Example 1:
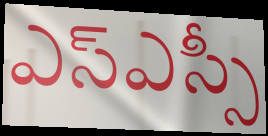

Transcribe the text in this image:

ఎస్ఎస్సీ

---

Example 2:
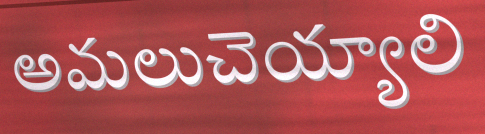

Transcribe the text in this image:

అమలుచెయ్యాలి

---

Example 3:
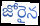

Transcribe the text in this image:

జోరైన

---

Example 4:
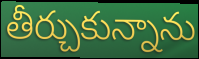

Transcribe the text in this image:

తీర్చుకున్నాను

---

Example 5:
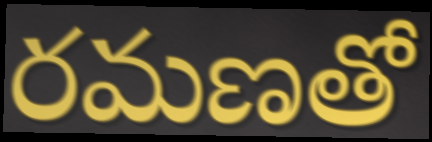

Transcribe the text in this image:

రమణతో